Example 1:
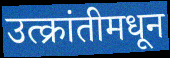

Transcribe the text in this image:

उत्क्रांतीमधून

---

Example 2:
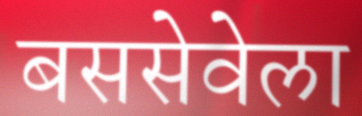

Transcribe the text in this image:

बससेवेला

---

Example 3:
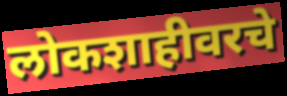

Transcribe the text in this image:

लोकशाहीवरचे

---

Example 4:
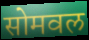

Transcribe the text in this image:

सोमवल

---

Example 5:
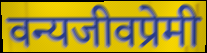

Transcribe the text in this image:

वन्यजीवप्रेमी